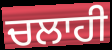
ਚਲਾਹੀ